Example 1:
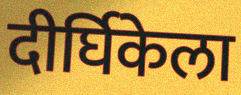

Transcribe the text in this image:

दीर्घिकेला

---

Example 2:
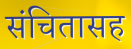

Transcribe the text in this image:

संचितासह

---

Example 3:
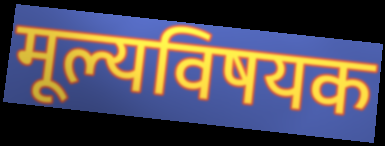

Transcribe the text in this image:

मूल्यविषयक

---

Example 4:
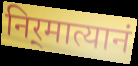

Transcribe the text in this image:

निर्मात्यानं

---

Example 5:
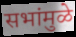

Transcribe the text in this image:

सभांमुळे